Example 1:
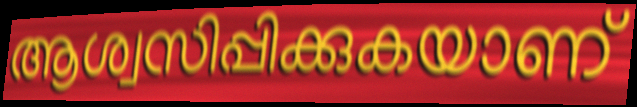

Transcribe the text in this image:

ആശ്വസിപ്പിക്കുകയാണ്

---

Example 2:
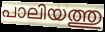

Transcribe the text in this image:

പാലിയത്തു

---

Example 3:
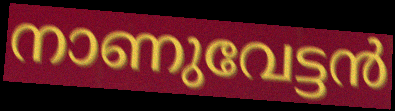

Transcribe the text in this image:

നാണുവേട്ടൻ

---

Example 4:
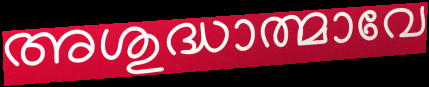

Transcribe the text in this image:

അശുദ്ധാത്മാവേ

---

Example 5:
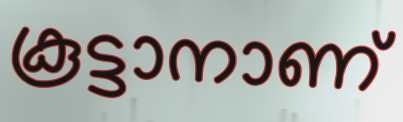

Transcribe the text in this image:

കൂട്ടാനാണ്